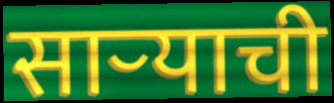
साऱ्याची